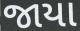
જાયા